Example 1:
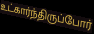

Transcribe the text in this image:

உட்கார்ந்திருப்போர்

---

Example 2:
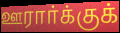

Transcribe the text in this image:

ஊரார்க்குக்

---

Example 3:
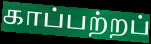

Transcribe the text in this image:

காப்பற்றப்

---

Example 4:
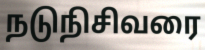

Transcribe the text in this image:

நடுநிசிவரை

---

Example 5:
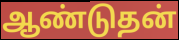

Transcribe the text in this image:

ஆண்டுதன்